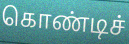
கொண்டிச்